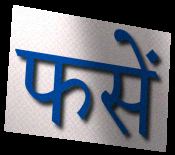
फसें